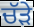
ਚੱੜੇ